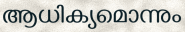
ആധിക്യമൊന്നും